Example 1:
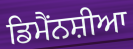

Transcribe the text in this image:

ਡਿਮੈਂਨਸ਼ੀਆ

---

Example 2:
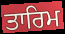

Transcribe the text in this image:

ਤਾਰਿਮ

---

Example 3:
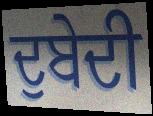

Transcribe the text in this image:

ਦੁਬੇਦੀ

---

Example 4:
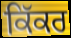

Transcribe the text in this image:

ਕਿੱਕਰ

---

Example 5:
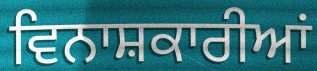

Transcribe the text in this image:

ਵਿਨਾਸ਼ਕਾਰੀਆਂ